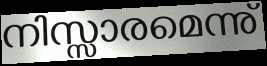
നിസ്സാരമെന്നു്